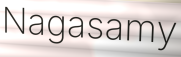
Nagasamy